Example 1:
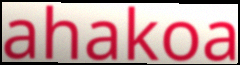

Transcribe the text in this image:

ahakoa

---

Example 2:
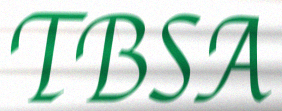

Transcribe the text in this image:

TBSA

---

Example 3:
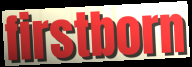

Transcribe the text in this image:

firstborn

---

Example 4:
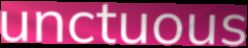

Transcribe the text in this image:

unctuous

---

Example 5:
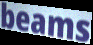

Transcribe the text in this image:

beams